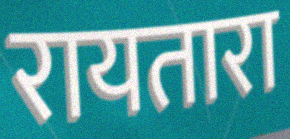
रायतारा